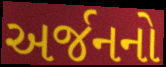
અર્જનનો